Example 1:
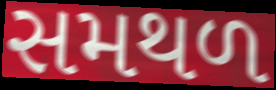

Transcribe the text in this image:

સમથળ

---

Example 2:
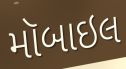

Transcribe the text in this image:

મૉબાઇલ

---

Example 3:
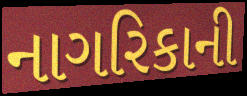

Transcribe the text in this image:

નાગરિકાની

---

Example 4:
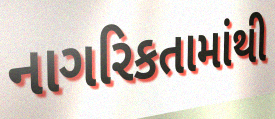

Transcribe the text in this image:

નાગરિકતામાંથી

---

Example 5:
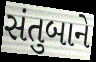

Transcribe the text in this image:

સંતુબાને